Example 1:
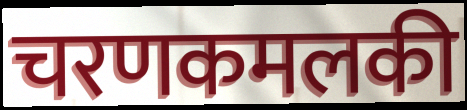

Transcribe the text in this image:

चरणकमलकी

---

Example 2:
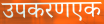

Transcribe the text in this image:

उपकरणएक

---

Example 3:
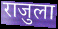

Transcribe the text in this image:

राजुला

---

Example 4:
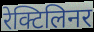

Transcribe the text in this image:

रेक्टिलिनर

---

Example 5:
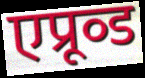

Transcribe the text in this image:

एप्रूव्ड